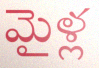
మైళ్ల